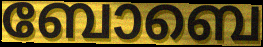
ബോബെ